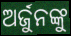
ଅର୍ଜୁନଙ୍କୁ